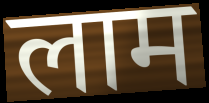
लाम